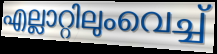
എല്ലാറ്റിലുംവെച്ച്